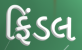
ફિંડલ